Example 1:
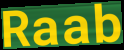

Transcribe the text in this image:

Raab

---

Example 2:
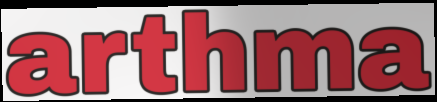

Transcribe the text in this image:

arthma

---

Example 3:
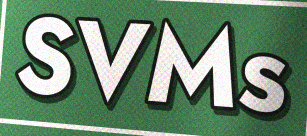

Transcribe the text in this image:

SVMs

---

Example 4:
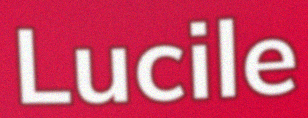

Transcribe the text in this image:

Lucile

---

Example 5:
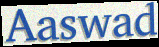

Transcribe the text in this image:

Aaswad